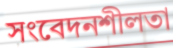
সংবেদনশীলতা